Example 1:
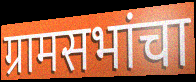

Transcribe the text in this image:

ग्रामसभांचा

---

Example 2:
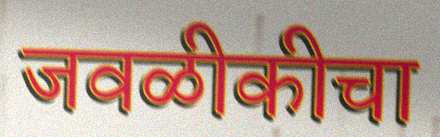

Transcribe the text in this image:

जवळीकीचा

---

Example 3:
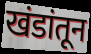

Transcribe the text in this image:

खंडांतून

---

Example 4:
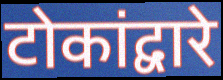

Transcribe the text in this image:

टोकांद्वारे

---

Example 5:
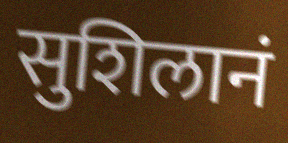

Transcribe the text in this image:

सुशिलानं